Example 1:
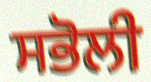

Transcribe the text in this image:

ਸਭੋਲੀ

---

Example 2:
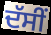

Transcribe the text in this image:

ਦੱਸੀਂ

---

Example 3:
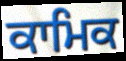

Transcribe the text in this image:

ਕਾਮਿਕ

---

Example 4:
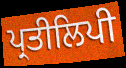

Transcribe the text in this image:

ਪ੍ਰਤੀਲਿਪੀ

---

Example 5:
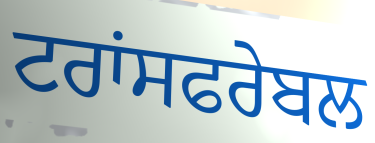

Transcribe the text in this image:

ਟਰਾਂਸਫਰੇਬਲ